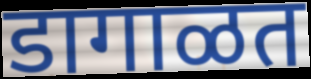
डागाळत